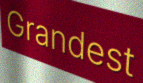
Grandest